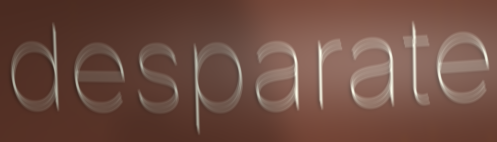
desparate